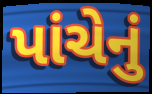
પાંચેનું